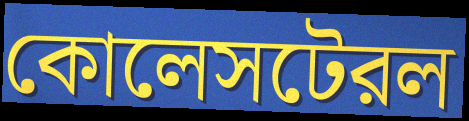
কোলেসটেরল